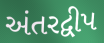
અંતરદ્વીપ